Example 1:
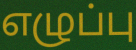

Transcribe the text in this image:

எழுப்பு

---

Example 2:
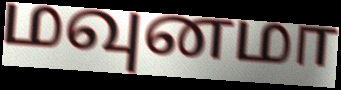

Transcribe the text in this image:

மவுனமா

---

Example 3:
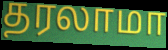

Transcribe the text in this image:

தரலாமா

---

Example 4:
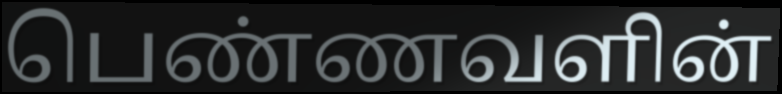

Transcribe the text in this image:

பெண்ணவளின்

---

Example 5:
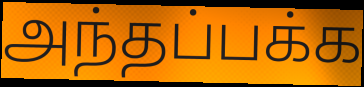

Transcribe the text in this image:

அந்தப்பக்க